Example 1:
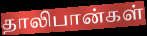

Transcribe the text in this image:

தாலிபான்கள்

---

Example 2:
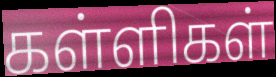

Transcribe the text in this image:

கள்ளிகள்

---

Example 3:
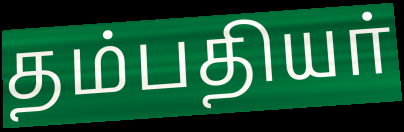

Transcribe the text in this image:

தம்பதியர்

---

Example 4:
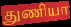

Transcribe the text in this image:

துணியா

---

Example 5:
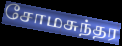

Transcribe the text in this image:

சோமசுந்தர